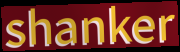
shanker